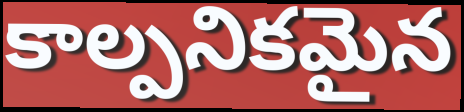
కాల్పనికమైన